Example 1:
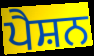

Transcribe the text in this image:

ਪੈਸ਼ਨ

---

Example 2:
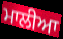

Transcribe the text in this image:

ਮਾਲੀਆ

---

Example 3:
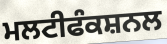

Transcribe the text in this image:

ਮਲਟੀਫੰਕਸ਼ਨਲ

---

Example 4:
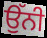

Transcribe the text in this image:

ਉੱਨੀ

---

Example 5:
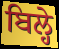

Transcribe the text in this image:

ਬਿਲ੍ਹੇ